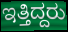
ಇತ್ತಿದ್ದರು